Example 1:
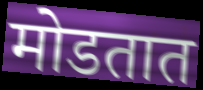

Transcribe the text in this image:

मोडतात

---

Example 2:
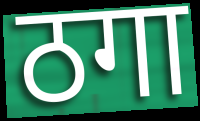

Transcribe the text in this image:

ठगा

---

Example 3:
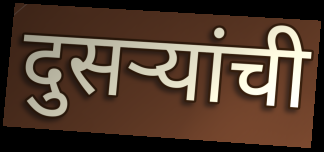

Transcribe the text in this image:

दुसऱ्यांची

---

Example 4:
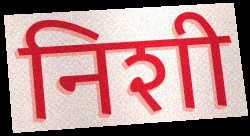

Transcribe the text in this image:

निशी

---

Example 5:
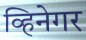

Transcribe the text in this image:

व्हिनेगर